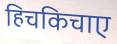
हिचकिचाए